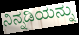
ನಿನ್ನಡಿಯನ್ನು